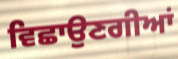
ਵਿਛਾਉਣਗੀਆਂ